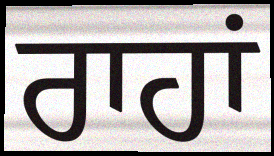
ਰਾਹਾਂ